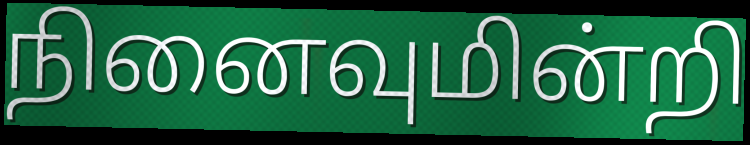
நினைவுமின்றி